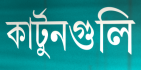
কার্টুনগুলি